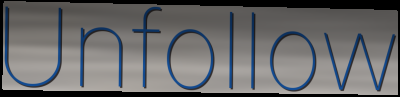
Unfollow